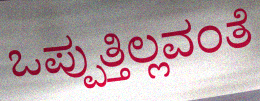
ಒಪ್ಪುತ್ತಿಲ್ಲವಂತೆ